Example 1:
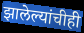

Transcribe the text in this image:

झालेल्यांचीही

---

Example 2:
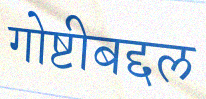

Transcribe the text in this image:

गोष्टीबद्दल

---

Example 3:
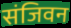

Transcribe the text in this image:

संजिवन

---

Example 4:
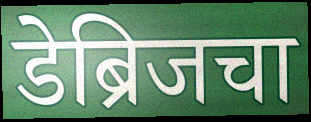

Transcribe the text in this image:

डेब्रिजचा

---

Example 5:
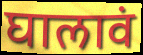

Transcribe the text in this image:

घालावं